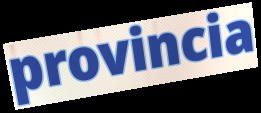
provincia